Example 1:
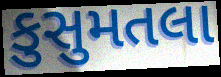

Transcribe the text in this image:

કુસુમતલા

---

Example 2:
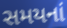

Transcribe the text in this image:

સમયનાં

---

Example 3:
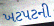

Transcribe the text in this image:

ખટપટની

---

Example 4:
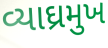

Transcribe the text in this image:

વ્યાઘ્રમુખ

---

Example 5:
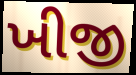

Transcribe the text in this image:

ખીજી